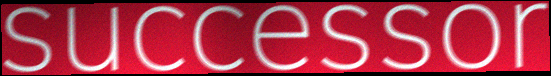
successor